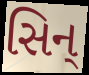
સિન્